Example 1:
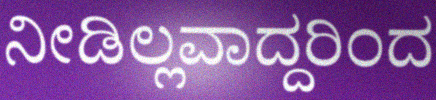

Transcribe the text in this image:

ನೀಡಿಲ್ಲವಾದ್ದರಿಂದ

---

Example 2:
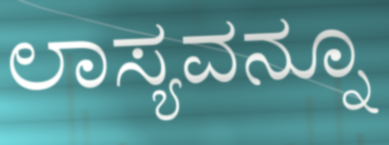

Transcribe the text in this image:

ಲಾಸ್ಯವನ್ನೂ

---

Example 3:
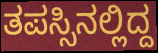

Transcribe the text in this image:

ತಪಸ್ಸಿನಲ್ಲಿದ್ದ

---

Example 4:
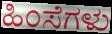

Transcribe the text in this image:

ಹಿಂಸೆಗಳು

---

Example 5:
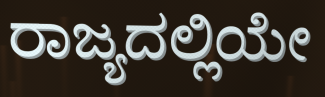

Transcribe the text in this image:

ರಾಜ್ಯದಲ್ಲಿಯೇ